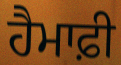
ਹੈਮਾਫ਼ੀ